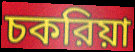
চকরিয়া